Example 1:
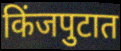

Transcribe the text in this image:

किंजपुटात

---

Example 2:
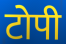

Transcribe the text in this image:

टोपी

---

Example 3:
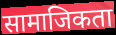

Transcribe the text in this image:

सामाजिकता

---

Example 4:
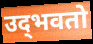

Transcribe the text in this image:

उद्‌भवतो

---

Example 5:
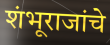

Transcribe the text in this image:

शंभूराजांचे